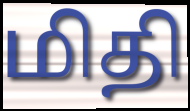
மிதி